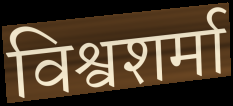
विश्वशर्मा